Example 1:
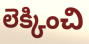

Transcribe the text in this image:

లెక్కించి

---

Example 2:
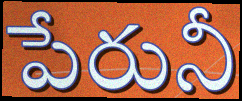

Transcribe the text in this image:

పేరునీ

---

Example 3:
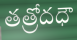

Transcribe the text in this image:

తత్రోదధౌ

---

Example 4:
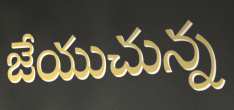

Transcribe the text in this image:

జేయుచున్న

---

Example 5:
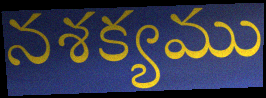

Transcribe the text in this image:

నశక్యము